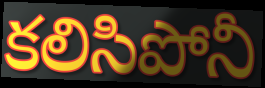
కలిసిపోనీ